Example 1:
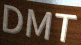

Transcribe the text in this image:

DMT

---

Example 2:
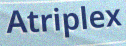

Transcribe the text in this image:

Atriplex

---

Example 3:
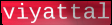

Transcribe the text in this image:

viyattal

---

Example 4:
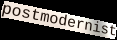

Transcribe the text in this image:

postmodernist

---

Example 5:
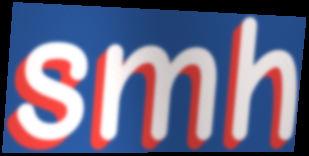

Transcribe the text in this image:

smh